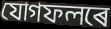
যোগফলৰে